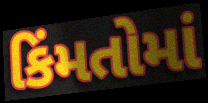
કિંમતોમાં